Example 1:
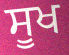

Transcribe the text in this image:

ਸੂਖ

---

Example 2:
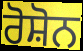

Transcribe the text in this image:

ਰੋਸ਼ੋਨ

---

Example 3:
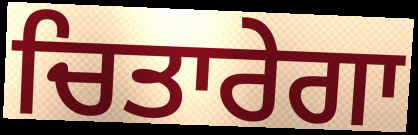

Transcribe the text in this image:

ਚਿਤਾਰੇਗਾ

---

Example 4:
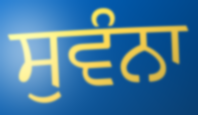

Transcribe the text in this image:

ਸੁਵੰਨਾ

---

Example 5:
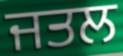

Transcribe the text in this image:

ਜਤਲ